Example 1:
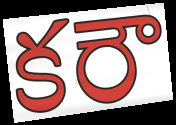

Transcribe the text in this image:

కరౌ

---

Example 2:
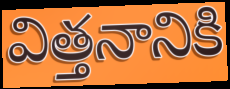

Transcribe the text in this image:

విత్తనానికి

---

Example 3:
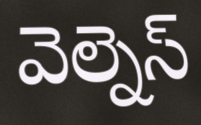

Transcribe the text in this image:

వెల్నెస్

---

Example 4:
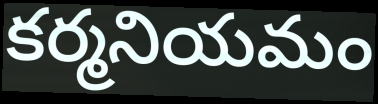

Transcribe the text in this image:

కర్మనియమం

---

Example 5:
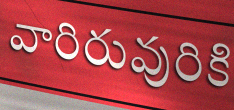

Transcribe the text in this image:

వారిరువురికి